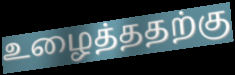
உழைத்ததற்கு